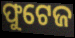
ଫୁଟେଜ